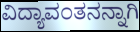
ವಿದ್ಯಾವಂತನನ್ನಾಗಿ